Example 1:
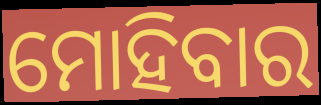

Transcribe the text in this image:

ମୋହିବାର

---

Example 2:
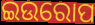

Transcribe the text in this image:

ଇଉରୋପ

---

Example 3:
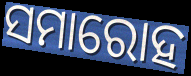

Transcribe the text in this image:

ସମାରୋହ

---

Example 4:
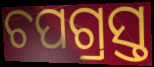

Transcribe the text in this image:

ଚପଗ୍ରସ୍ତ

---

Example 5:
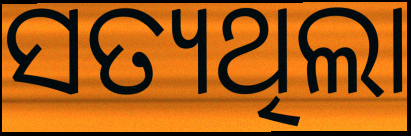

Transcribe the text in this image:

ସତ୍ୟଥିଲା